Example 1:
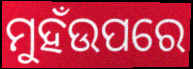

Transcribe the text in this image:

ମୁହଁଉପରେ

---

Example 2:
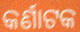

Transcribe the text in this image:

କର୍ଣାଟକ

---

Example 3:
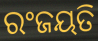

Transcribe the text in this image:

ରଂଜୟତି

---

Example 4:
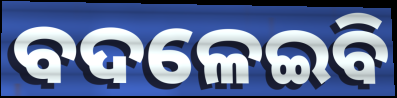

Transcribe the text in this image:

ବଦଳେଇବି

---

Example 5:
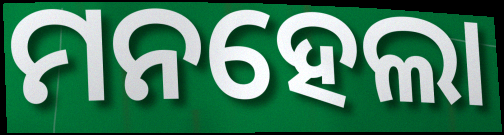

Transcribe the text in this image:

ମନହେଲା